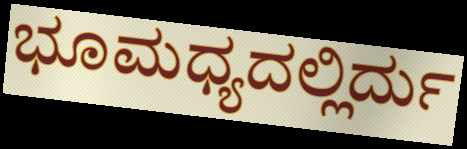
ಭೂಮಧ್ಯದಲ್ಲಿರ್ದು